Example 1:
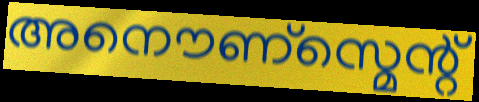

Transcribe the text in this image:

അനൌണ്സ്മെന്റ്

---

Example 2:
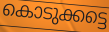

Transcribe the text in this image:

കൊടുക്കട്ടെ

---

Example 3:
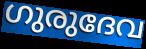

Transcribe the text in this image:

ഗുരുദേവ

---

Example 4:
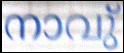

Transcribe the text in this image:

നാവു്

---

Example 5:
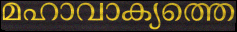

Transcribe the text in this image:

മഹാവാക്യത്തെ